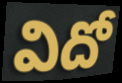
విదో